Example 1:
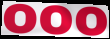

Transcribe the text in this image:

ooo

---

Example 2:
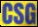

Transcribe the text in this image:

CSG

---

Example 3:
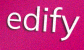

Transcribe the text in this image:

edify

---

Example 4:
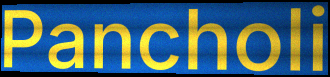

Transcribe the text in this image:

Pancholi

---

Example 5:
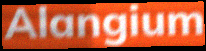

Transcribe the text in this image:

Alangium